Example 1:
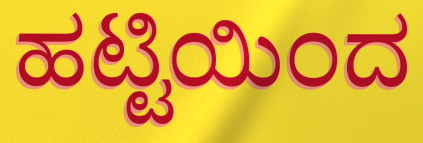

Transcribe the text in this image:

ಹಟ್ಟಿಯಿಂದ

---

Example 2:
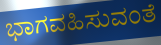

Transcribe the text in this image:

ಭಾಗವಹಿಸುವಂತೆ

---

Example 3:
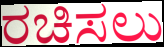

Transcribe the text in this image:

ರಚಿಸಲು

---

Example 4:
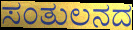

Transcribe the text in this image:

ಸಂತುಲನದ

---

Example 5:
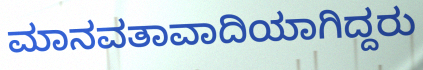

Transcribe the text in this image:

ಮಾನವತಾವಾದಿಯಾಗಿದ್ದರು